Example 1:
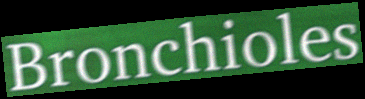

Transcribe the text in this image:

Bronchioles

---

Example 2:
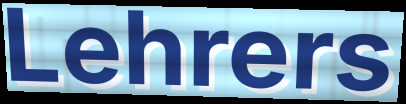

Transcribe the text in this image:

Lehrers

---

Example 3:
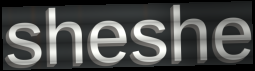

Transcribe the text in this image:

sheshe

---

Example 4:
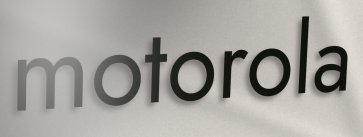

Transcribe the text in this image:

motorola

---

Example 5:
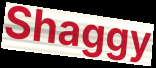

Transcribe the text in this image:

Shaggy